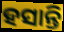
ହସାନ୍ତି